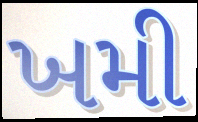
ખમી